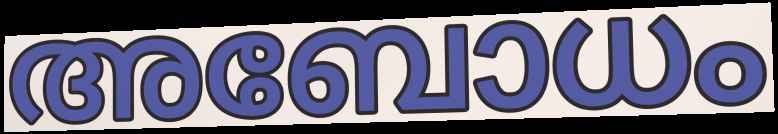
അബോധം